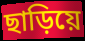
ছাড়িয়ে